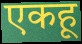
एकहू